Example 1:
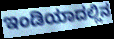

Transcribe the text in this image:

ಇಂಡಿಯಾದಲ್ಲಿನ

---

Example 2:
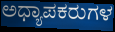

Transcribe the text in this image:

ಅಧ್ಯಾಪಕರುಗಳ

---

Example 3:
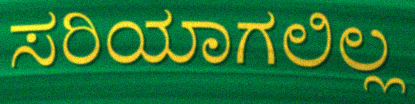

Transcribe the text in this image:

ಸರಿಯಾಗಲಿಲ್ಲ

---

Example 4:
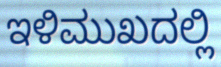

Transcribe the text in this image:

ಇಳಿಮುಖದಲ್ಲಿ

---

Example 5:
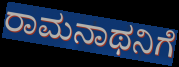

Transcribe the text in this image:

ರಾಮನಾಥನಿಗೆ